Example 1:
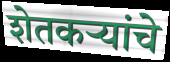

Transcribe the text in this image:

शेतकर्‍यांचे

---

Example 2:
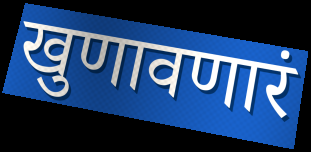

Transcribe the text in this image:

खुणावणारं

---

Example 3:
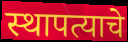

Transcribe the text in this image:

स्थापत्याचे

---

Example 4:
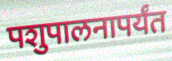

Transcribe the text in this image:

पशुपालनापर्यंत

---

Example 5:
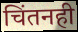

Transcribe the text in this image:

चिंतनही